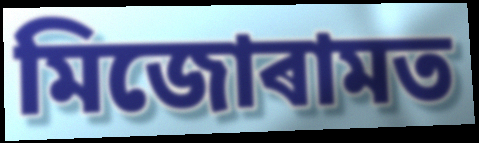
মিজোৰামত